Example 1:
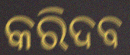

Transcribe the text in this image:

କରିଦବ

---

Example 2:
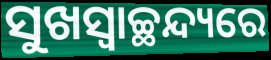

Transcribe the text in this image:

ସୁଖସ୍ଵାଚ୍ଛନ୍ଦ୍ୟରେ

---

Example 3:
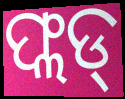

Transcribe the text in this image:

ଫ୍ଲଡ୍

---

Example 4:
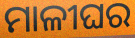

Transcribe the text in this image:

ମାଳୀଘର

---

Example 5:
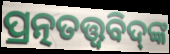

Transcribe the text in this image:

ପ୍ରତ୍ନତତ୍ତ୍ୱବିଦ୍‌ଙ୍କ